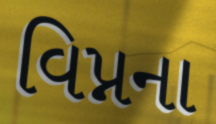
વિપ્નના